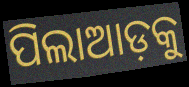
ପିଲାଆଡ଼କୁ